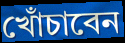
খোঁচাবেন